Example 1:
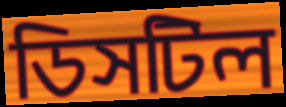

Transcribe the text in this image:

ডিসটিল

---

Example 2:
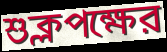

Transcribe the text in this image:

শুক্লপক্ষের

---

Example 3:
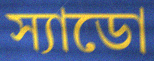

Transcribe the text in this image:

স্যাডো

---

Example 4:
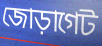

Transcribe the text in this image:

জোড়াগেট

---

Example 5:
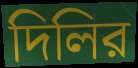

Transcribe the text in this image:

দিলির